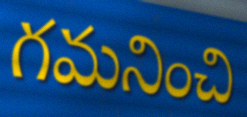
గమనించి